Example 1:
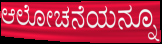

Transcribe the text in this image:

ಆಲೋಚನೆಯನ್ನೂ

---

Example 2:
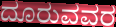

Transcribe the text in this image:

ದೂರುವವರ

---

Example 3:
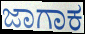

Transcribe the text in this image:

ಜಾಗಾಕ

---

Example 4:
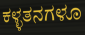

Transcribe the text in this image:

ಕಳ್ಳತನಗಳೂ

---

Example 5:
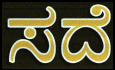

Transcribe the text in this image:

ಸದೆ